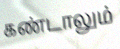
கண்டாலும்